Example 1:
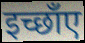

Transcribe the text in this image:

इच्छाँए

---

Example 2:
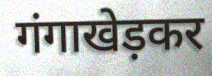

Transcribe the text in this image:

गंगाखेड़कर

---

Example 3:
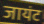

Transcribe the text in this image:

जायंट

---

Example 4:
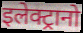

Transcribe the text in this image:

इलेक्ट्रानो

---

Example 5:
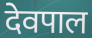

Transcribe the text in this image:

देवपाल